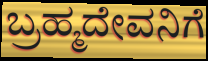
ಬ್ರಹ್ಮದೇವನಿಗೆ